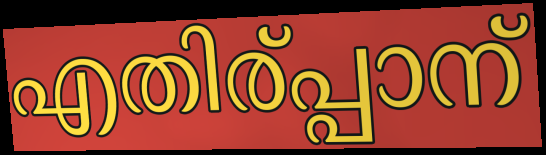
എതിര്പ്പാന്